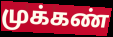
முக்கண்